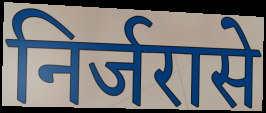
निर्जरासे